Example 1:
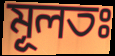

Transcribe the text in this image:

মূলতঃ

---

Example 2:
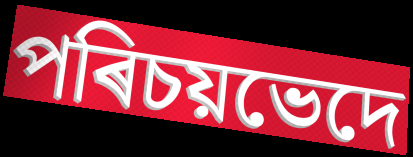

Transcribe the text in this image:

পৰিচয়ভেদে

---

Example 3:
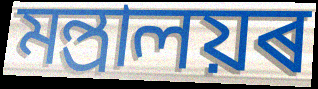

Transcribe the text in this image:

মন্ত্ৰালয়ৰ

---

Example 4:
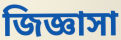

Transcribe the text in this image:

জিজ্ঞাসা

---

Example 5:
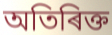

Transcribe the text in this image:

অতিৰিক্ত